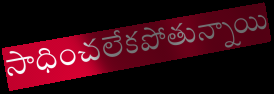
సాధించలేకపోతున్నాయి